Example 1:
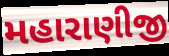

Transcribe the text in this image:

મહારાણીજી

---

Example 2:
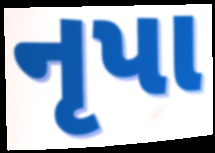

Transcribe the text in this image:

નૃપા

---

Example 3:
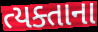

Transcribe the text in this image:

ત્યક્તાના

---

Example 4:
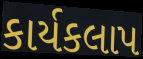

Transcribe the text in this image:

કાર્યકલાપ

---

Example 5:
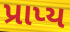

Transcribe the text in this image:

પ્રાપ્ય